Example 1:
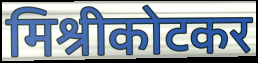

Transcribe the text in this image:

मिश्रीकोटकर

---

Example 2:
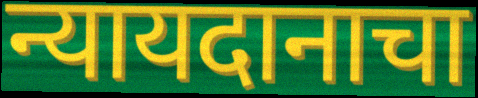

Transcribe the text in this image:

न्यायदानाचा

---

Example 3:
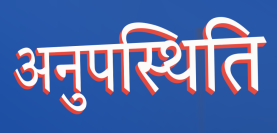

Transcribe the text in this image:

अनुपस्थिति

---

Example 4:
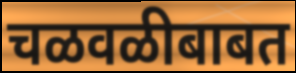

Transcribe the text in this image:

चळवळीबाबत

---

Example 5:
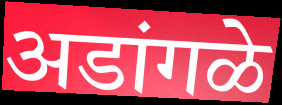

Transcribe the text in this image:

अडांगळे